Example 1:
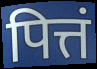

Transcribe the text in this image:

पित्तं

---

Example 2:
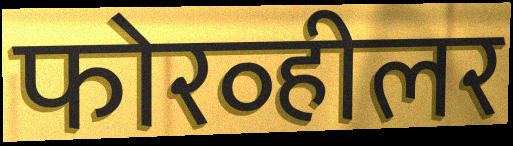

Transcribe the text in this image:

फोरव्हीलर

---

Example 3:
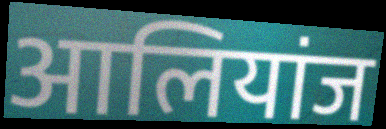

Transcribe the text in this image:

आलियांज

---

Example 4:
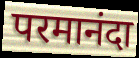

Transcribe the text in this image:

परमानंदा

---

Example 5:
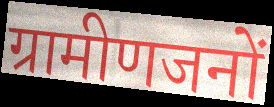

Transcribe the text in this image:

ग्रामीणजनों